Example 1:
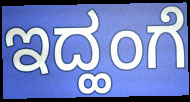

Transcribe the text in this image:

ಇದ್ಹಂಗೆ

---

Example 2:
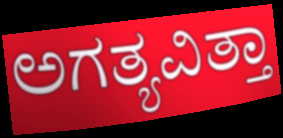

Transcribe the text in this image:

ಅಗತ್ಯವಿತ್ತಾ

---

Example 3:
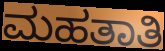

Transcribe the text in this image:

ಮಹತಾತಿ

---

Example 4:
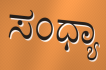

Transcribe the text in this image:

ಸಂಧ್ಯಾ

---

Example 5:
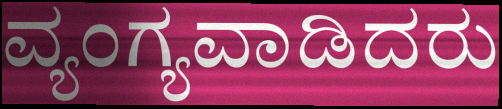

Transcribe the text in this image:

ವ್ಯಂಗ್ಯವಾಡಿದರು